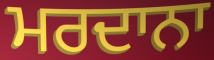
ਮਰਦਾਨਾ